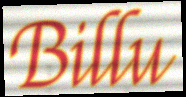
Billu